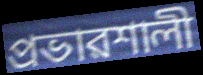
প্ৰভাৱশালী